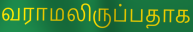
வராமலிருப்பதாக